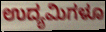
ಉದ್ಯಮಿಗಳೂ